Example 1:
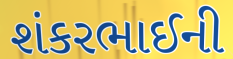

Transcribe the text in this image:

શંકરભાઈની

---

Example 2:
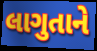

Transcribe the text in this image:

લાગુતાને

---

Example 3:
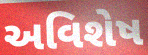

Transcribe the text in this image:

અવિશેષ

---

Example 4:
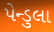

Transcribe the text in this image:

પેન્ડુલા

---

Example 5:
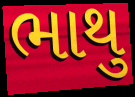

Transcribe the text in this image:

ભાથુ